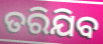
ତରିଯିବ